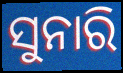
ସୁନାରି